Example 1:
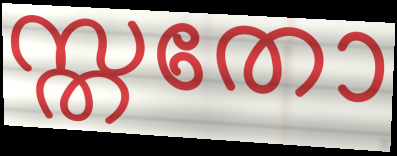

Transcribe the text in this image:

സ്തതോ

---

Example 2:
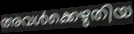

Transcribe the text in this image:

അവൾക്കെഴുതിയ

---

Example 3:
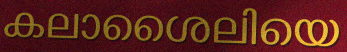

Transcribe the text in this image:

കലാശൈലിയെ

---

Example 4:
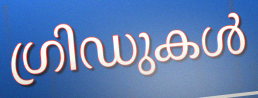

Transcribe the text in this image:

ഗ്രിഡുകൾ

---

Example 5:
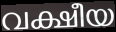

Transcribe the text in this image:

വക്ഷീയ